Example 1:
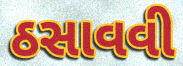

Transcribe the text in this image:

ઠસાવવી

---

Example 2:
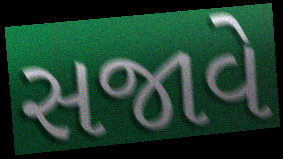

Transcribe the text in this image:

સજાવે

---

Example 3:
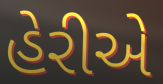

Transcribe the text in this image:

હેરીએ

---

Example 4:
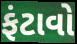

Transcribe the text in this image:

ફંટાવો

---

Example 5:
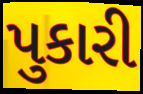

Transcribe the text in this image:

પુકારી